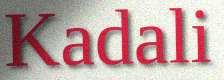
Kadali